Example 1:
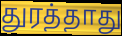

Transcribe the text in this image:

துரத்தாது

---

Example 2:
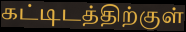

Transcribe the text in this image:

கட்டிடத்திற்குள்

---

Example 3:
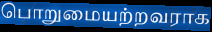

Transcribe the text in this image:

பொறுமையற்றவராக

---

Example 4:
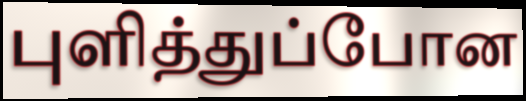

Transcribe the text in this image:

புளித்துப்போன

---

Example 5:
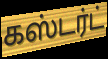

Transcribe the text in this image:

கஸ்டர்ட்